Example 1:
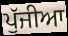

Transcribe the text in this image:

ਪੁੱਜੀਆ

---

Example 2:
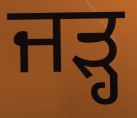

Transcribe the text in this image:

ਜੜ੍ਹ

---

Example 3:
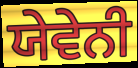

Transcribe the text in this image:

ਯੇਵੇਨੀ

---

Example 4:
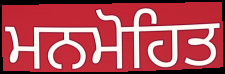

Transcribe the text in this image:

ਮਨਮੋਹਿਤ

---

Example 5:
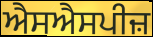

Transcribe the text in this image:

ਐਸਐਸਪੀਜ਼